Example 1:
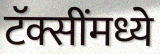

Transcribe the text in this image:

टॅक्सींमध्ये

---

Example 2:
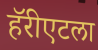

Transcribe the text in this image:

हॅरीएटला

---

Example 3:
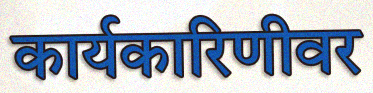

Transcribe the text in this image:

कार्यकारिणीवर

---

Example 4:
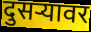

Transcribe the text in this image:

दुसऱ्यावर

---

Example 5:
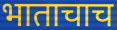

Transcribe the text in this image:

भाताचाच